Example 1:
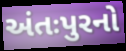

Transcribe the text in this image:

અંતઃપુરનો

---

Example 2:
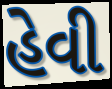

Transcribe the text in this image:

હેવી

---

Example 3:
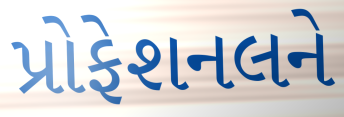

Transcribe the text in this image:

પ્રોફેશનલને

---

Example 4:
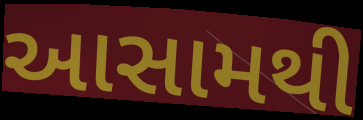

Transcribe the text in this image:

આસામથી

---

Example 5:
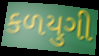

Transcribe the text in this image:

કળયુગી